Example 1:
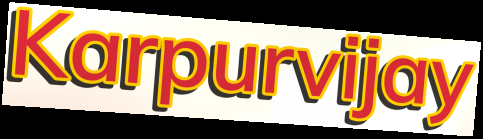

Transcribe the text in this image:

Karpurvijay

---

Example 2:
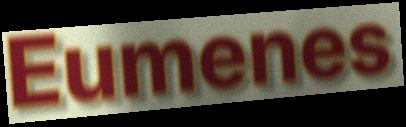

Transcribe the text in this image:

Eumenes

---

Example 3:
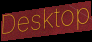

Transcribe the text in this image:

Desktop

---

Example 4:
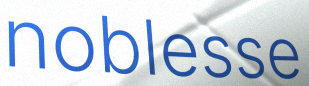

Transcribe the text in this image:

noblesse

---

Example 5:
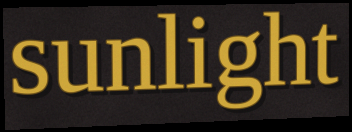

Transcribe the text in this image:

sunlight